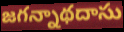
జగన్నాథదాసు